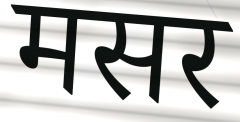
मसर